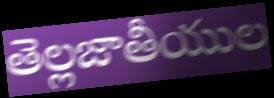
తెల్లజాతీయుల